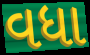
વધા